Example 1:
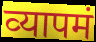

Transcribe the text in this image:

व्‍यापमं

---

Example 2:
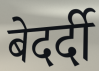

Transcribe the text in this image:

बेदर्दी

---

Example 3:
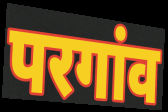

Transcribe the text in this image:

परगांव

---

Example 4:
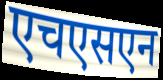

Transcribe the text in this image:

एचएसएन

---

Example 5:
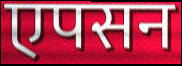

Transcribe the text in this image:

एपसन